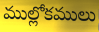
ముల్లోకములు